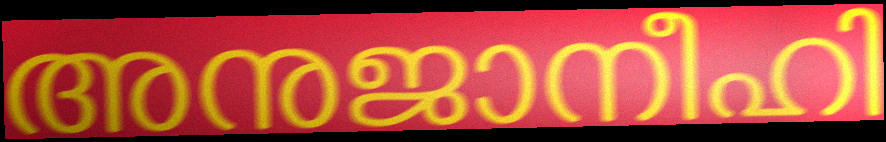
അനുജാനീഹി